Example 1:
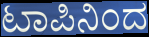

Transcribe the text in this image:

ಟಾಪಿನಿಂದ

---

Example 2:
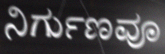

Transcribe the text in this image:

ನಿರ್ಗುಣವೂ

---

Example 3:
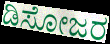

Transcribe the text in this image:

ಡಿಸೋಜರ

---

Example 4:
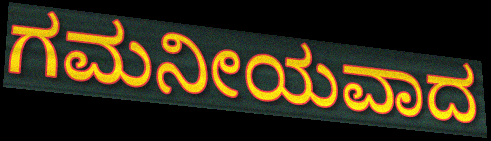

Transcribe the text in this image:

ಗಮನೀಯವಾದ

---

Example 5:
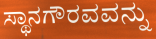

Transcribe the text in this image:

ಸ್ಥಾನಗೌರವವನ್ನು